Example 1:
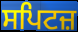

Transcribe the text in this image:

ਸਪਿਟਜ਼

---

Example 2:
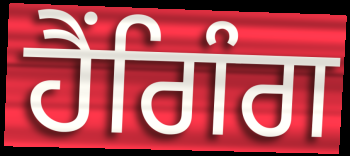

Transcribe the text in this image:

ਹੈਂਗਿੰਗ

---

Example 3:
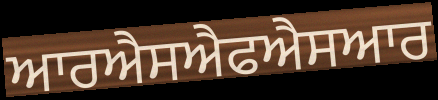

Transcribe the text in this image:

ਆਰਐਸਐਫਐਸਆਰ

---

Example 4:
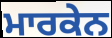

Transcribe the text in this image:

ਮਾਰਕੇਨ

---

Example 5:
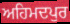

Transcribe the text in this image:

ਅਹਿਮਦਪੁਰ